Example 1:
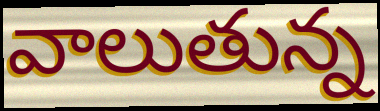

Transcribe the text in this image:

వాలుతున్న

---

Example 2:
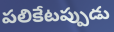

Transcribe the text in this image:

పలికేటప్పుడు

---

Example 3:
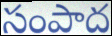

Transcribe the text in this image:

సంపాద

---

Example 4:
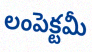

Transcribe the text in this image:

లంపెక్టమీ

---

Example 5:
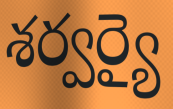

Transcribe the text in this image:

శర్వర్యై